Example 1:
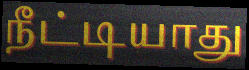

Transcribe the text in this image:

நீட்டியாது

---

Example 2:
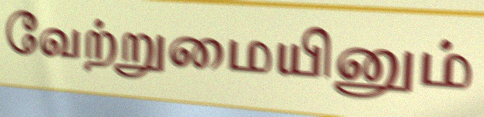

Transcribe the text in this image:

வேற்றுமையினும்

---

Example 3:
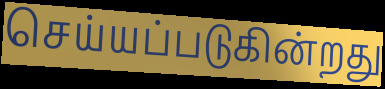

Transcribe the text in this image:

செய்யப்படுகின்றது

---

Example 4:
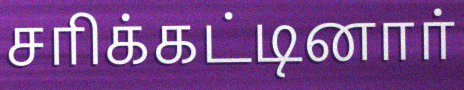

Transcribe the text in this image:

சரிக்கட்டினார்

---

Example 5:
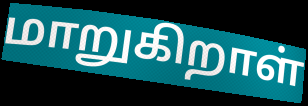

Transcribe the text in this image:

மாறுகிறாள்